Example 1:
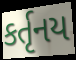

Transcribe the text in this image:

કર્તૃનય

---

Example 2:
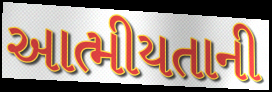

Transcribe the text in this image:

આત્મીયતાની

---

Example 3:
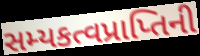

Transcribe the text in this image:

સમ્યકત્વપ્રાપ્તિની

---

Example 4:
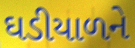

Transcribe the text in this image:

ઘડીયાળને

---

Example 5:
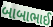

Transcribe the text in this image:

બાબાભાઈ